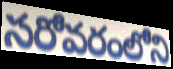
సరోవరంలోని